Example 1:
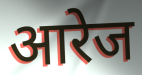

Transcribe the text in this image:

आरेज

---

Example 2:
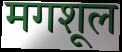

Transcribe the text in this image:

मगशूल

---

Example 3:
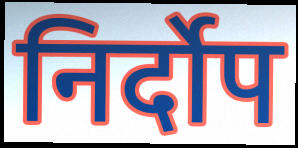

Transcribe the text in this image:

निर्दोप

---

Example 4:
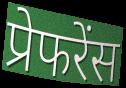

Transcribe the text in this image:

प्रेफरेंस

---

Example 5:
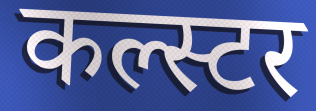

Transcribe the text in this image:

कल्स्टर